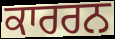
ਕਾਰਰਨ